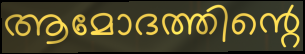
ആമോദത്തിന്റെ